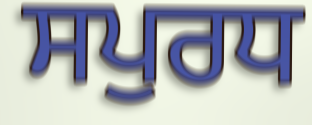
ਸਪੁਰਧ